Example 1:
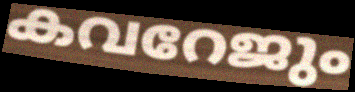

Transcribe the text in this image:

കവറേജും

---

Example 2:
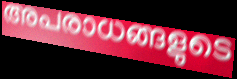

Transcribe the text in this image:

അപരാധങ്ങളുടെ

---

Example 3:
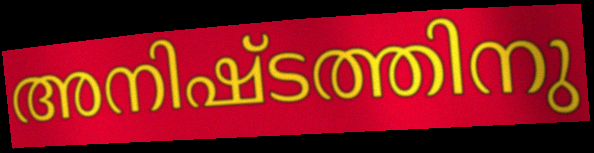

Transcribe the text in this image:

അനിഷ്ടത്തിനു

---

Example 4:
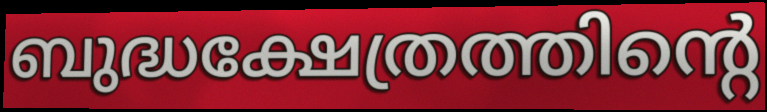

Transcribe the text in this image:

ബുദ്ധക്ഷേത്രത്തിന്റെ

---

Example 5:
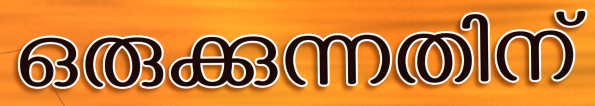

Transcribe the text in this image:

ഒരുക്കുന്നതിന്